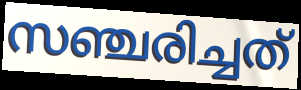
സഞ്ചരിച്ചത്